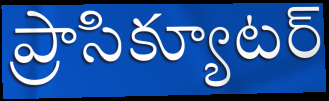
ప్రాసిక్యూటర్